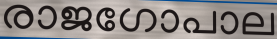
രാജഗോപാല